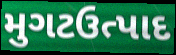
મુગટઉત્પાદ